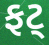
ફટ્